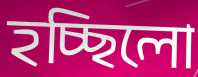
হচ্ছিলো